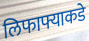
लिफाफ्याकडे